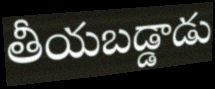
తీయబడ్డాడు